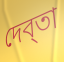
দেব্তা